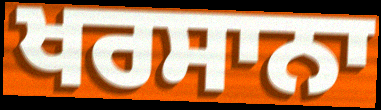
ਖਰਸਾਨਾ